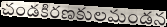
చండకిరణకులమండన